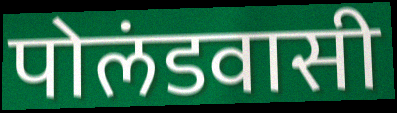
पोलंडवासी